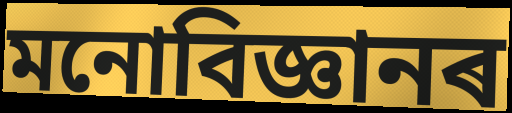
মনোবিজ্ঞানৰ